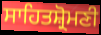
ਸਾਹਿਤਸ਼੍ਰੋਮਣੀ